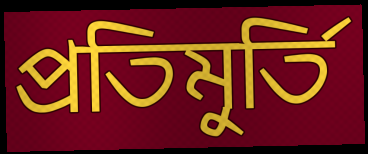
প্রতিমুর্তি